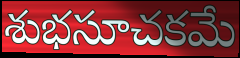
శుభసూచకమే